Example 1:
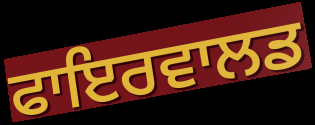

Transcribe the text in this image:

ਫਾਇਰਵਾਲਡ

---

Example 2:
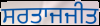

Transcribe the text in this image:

ਸਰਤਾਜਜੀਤ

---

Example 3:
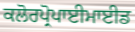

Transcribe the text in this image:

ਕਲੋਰਪ੍ਰੋਪਾਈਮਾਈਡ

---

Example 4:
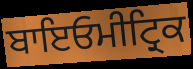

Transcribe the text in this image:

ਬਾਇਓਮੀਟ੍ਰਿਕ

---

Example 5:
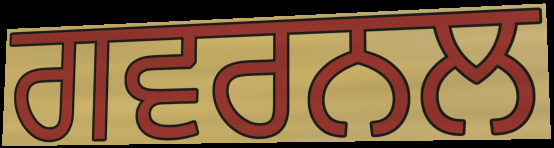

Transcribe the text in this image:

ਗਵਰਨਲ